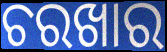
ଚରଖାର